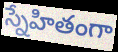
స్నేహితంగా